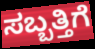
ಸಬ್ಬತ್ತಿಗೆ